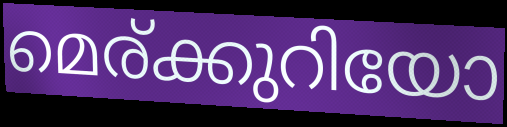
മെര്ക്കുറിയോ